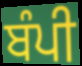
ਬੰਪੀ